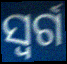
ସ୍ବର୍ଗ